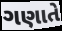
ગણાતે